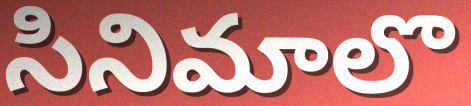
సినిమాలొ